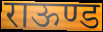
राऊण्ड